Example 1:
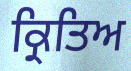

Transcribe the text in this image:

ਕ੍ਰਿਤਿਅ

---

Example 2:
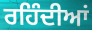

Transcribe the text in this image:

ਰਹਿੰਦੀਆਂ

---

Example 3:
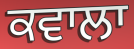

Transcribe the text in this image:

ਕਵਾਲਾ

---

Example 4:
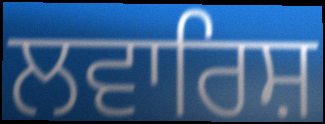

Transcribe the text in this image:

ਲਵਾਰਿਸ਼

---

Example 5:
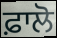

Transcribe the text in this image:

ਫ਼ਾਲੋ